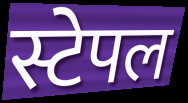
स्टेपल